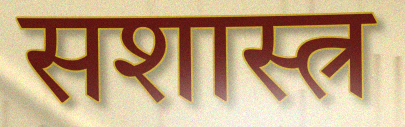
सशास्त्र